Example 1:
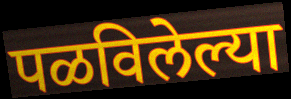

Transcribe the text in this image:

पळविलेल्या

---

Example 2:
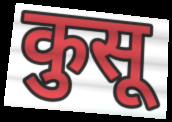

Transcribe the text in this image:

कुसू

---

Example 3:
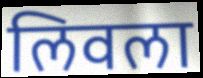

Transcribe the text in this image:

लिवला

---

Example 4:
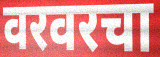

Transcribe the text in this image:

वरवरचा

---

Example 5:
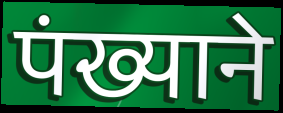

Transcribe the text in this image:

पंख्याने